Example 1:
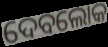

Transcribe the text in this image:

ଦେବଲୋକ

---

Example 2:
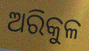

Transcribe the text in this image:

ଅରିକୁଳ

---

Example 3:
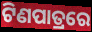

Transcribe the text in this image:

ଟିଣପାତ୍ରରେ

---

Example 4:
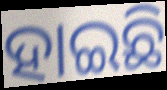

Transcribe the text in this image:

ହାଇଛି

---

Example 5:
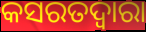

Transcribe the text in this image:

କସରତଦ୍ୱାରା